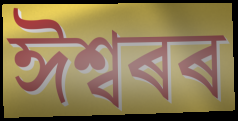
ঈশ্বৰৰ